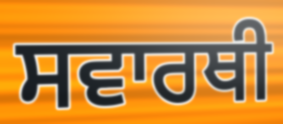
ਸਵਾਰਥੀ